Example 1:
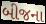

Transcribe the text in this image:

બીજના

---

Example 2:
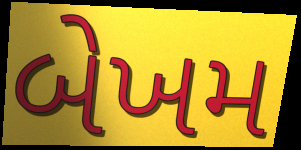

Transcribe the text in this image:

બેખમ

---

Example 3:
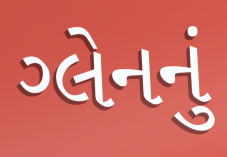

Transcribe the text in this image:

ગ્લેનનું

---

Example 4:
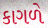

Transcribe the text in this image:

કાગળે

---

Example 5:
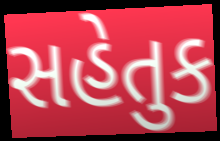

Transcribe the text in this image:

સહેતુક